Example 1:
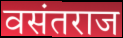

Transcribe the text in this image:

वसंतराज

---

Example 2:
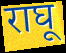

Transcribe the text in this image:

राघू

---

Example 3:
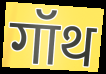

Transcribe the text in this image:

गॉथ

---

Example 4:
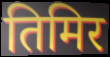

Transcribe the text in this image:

तिमिर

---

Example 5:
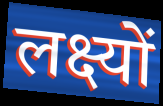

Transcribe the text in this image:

लक्ष्‍यों